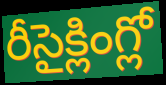
రీసైక్లింగ్లో